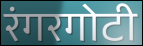
रंगरगोटी